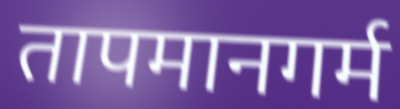
तापमानगर्म